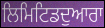
ਲਿਮਿਟਿਡਦੁਆਰਾ